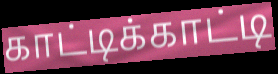
காட்டிக்காட்டி